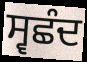
ਸ੍ਵਛੰਦ